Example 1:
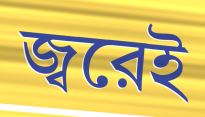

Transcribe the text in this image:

জ্বরেই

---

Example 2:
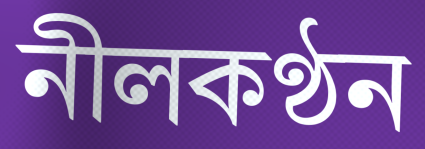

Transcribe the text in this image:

নীলকণ্ঠন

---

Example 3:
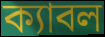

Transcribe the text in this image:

ক্যাবল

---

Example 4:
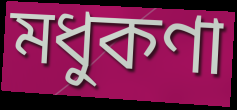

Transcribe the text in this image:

মধুকণা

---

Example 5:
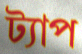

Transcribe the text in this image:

ট্যাপ